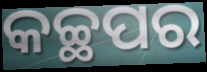
କଚ୍ଛପର